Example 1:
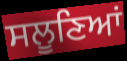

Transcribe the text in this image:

ਸਲੂਣਿਆਂ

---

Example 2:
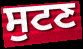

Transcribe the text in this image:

ਸੁਟਣ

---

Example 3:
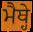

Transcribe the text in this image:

ਮੈਥ੍ਹੇ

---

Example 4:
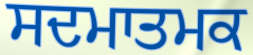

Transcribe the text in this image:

ਸਦਮਾਤਮਕ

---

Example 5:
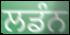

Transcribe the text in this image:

ਲਡੰਨ